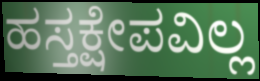
ಹಸ್ತಕ್ಷೇಪವಿಲ್ಲ